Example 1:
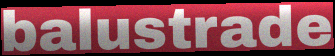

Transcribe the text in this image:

balustrade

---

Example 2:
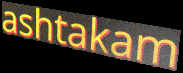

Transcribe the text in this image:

ashtakam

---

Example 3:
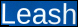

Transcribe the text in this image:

Leash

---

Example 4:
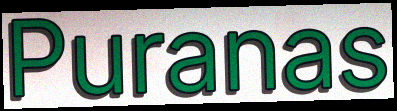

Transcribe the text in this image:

Puranas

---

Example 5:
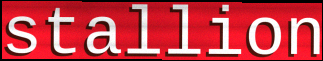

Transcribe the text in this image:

stallion